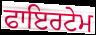
ਫਾਇਰਟੇਮ